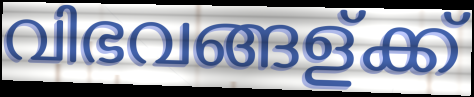
വിഭവങ്ങള്ക്ക്